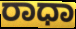
ರಾಧಾ